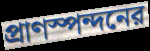
প্রাণস্পন্দনের